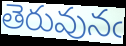
తెరువునఁ